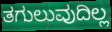
ತಗುಲುವುದಿಲ್ಲ